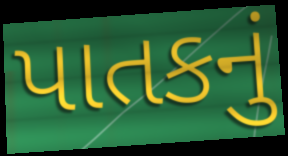
પાતકનું